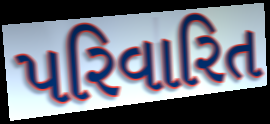
પરિવારિત